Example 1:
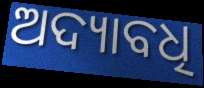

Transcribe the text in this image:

ଅଦ୍ୟାବଧି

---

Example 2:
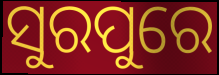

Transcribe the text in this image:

ସୁରପୁରେ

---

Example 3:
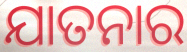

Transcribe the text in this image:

ଯାତନାର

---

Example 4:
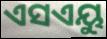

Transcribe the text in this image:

ଏସଏୟୁ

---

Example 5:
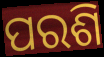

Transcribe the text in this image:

ପରଶି